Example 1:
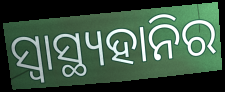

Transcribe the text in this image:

ସ୍ଵାସ୍ଥ୍ୟହାନିର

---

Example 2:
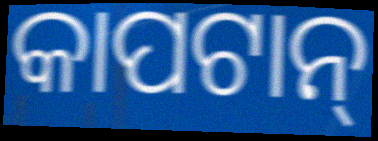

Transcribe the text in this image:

କାପଟାନ୍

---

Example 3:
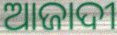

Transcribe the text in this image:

ଆଜାଦୀ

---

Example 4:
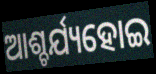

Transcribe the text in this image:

ଆଶ୍ଚର୍ଯ୍ୟହୋଇ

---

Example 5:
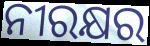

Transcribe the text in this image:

ନୀରକ୍ଷର